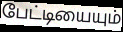
பேட்டியையும்